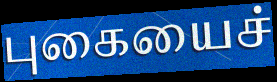
புகையைச்